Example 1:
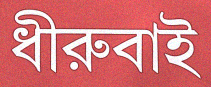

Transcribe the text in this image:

ধীরুবাই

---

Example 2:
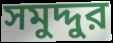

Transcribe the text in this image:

সমুদ্দুর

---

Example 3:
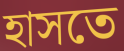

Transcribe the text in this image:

হাসতে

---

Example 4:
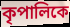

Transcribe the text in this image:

কৃপালিকে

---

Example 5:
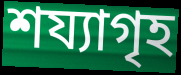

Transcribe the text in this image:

শয্যাগৃহ